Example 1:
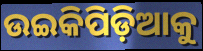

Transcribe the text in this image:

ଉଇକିପିଡ଼ିଆକୁ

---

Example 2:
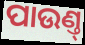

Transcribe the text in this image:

ପାଉଣ୍ତ୍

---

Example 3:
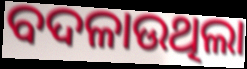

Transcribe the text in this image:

ବଦଳାଉଥିଲା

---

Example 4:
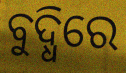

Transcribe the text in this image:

ବୁଦ୍ଧିରେ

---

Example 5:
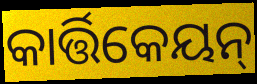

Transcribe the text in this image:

କାର୍ତ୍ତିକେୟନ୍